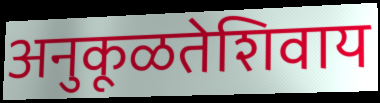
अनुकूळतेशिवाय